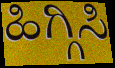
ಹಿಗ್ಗಿಸಿ